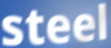
steel